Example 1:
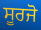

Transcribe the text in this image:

ਸੂਰਜੋ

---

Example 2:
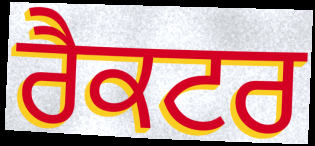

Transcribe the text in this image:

ਰੈਕਟਰ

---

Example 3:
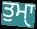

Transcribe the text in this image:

ਤੁਮਾੑ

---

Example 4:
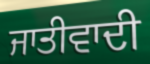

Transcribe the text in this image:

ਜਾਤੀਵਾਦੀ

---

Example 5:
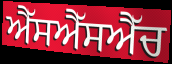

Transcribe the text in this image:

ਐੱਸਐੱਸਐੱਚ